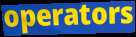
operators